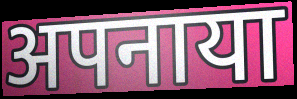
अपनाया